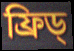
ফ্ৰিড্